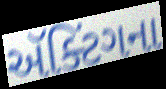
ઍક્ટિંગના